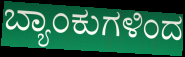
ಬ್ಯಾಂಕುಗಳಿಂದ